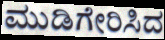
ಮುಡಿಗೇರಿಸಿದ